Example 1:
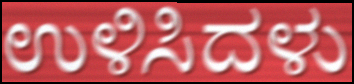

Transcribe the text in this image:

ಉಳಿಸಿದಳು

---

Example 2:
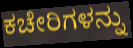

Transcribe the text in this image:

ಕಚೇರಿಗಳನ್ನು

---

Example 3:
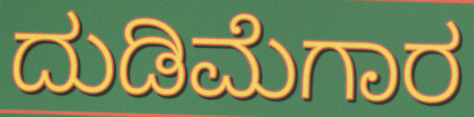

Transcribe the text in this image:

ದುಡಿಮೆಗಾರ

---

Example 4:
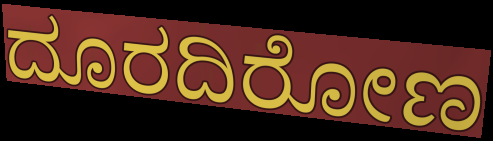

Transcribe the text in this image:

ದೂರದಿರೋಣ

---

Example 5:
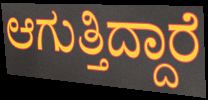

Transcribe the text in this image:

ಆಗುತ್ತಿದ್ದಾರೆ